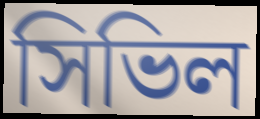
সিভিল